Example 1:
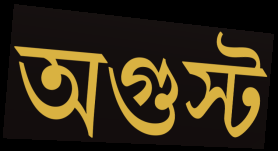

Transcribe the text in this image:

অগুস্ট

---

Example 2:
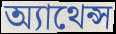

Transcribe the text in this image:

অ্যাথেন্স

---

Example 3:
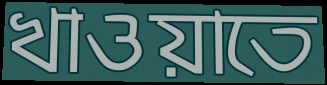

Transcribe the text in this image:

খাওয়াতে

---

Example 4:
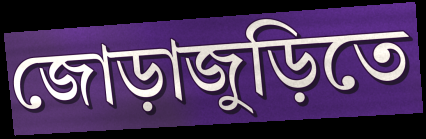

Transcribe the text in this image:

জোড়াজুড়িতে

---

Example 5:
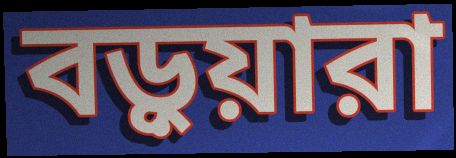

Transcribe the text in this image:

বড়ুয়ারা